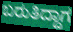
ಬರುತಿದ್ದಾಗ